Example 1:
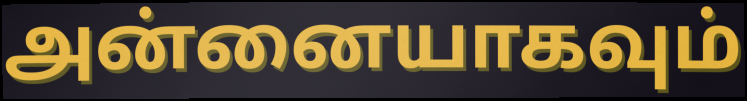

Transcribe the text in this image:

அன்னையாகவும்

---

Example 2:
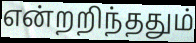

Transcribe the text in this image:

என்றறிந்ததும்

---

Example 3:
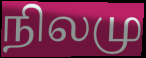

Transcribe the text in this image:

நிலமு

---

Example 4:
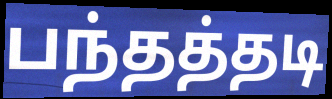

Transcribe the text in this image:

பந்தத்தடி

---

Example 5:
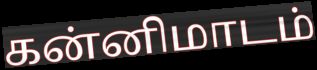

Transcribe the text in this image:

கன்னிமாடம்